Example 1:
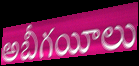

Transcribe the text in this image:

అబీగయీలు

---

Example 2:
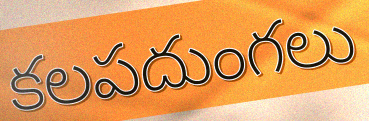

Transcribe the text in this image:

కలపదుంగలు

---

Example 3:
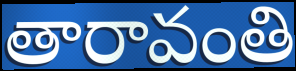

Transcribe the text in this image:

తారావంతి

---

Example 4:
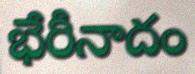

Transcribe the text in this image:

భేరీనాదం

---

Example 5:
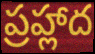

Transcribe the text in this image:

ప్రహ్లాద